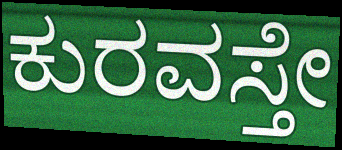
ಕುರವಸ್ತೇ